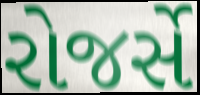
રોજર્સે